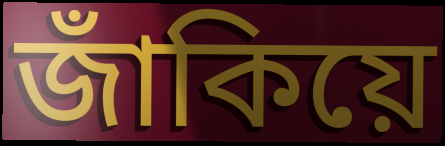
জাঁকিয়ে